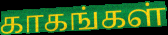
காகங்கள்